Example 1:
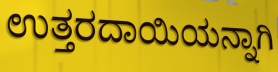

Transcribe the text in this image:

ಉತ್ತರದಾಯಿಯನ್ನಾಗಿ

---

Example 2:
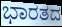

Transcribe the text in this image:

ಭಾರತದ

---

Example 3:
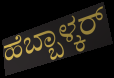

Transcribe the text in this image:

ಹೆಬ್ಬಾಳ್ಕರ್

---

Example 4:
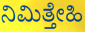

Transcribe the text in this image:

ನಿಮಿತ್ತೇಹಿ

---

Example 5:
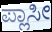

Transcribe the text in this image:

ಪ್ಲಾಸೀ